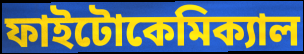
ফাইটোকেমিক্যাল